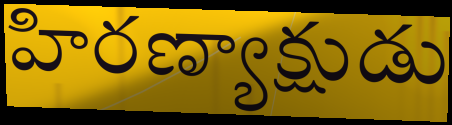
హిరణ్యాక్షుడు